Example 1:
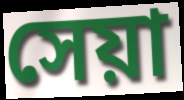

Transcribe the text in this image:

সেয়া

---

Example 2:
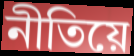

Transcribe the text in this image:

নীতিয়ে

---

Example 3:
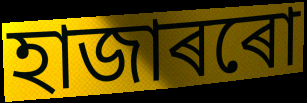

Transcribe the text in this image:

হাজাৰৰো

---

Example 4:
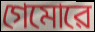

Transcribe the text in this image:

গেমোৱে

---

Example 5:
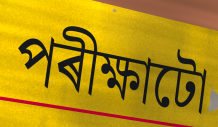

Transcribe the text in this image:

পৰীক্ষাটো